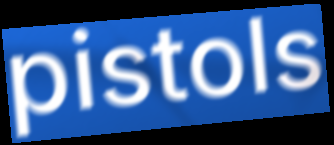
pistols